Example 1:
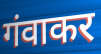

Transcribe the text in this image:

गंवाकर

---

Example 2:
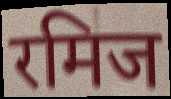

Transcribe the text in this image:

रमिज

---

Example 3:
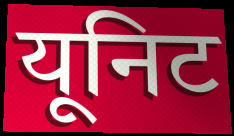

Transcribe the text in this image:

यूनिट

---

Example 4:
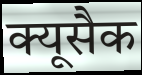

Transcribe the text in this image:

क्यूसैक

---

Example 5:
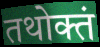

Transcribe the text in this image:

तथोक्तं